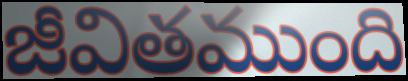
జీవితముంది